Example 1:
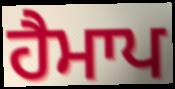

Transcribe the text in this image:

ਹੈਮਾਪ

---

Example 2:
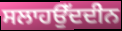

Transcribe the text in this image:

ਸਲਾਹਉੱਦਦੀਨ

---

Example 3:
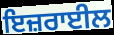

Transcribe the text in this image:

ਇਜ਼ਰਾਈਲ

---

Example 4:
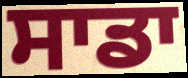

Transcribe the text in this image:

ਸਾਡਾ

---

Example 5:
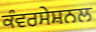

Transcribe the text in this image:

ਕੰਵਰਸੇਸ਼ਨਲ